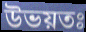
উভয়তঃ